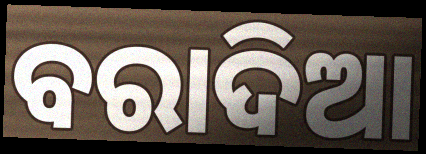
ବରାଦିଆ